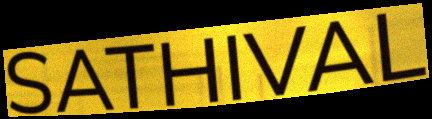
SATHIVAL